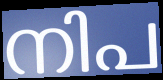
നിപ